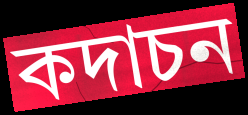
কদাচন